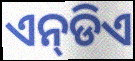
ଏନ୍‌ଡିଏ